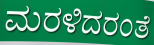
ಮರಳಿದರಂತೆ